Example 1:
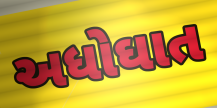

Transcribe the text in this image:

અધોઘાત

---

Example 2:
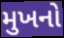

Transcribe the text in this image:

મુખનો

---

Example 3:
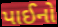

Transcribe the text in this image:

પાઈનો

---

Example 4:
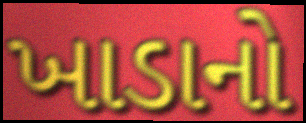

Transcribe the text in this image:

ખાડાનો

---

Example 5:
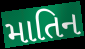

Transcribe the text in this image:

માતિન